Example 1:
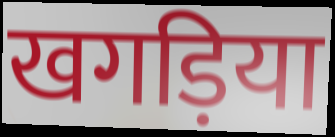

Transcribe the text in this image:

खगड़िया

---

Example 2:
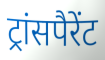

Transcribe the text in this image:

ट्रांसपैरेंट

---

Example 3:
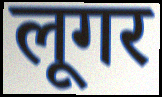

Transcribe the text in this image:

लूगर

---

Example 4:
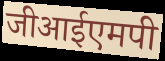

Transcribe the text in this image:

जीआईएमपी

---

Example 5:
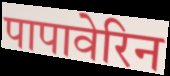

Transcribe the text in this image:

पापावेरिन